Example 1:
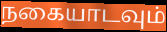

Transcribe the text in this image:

நகையாடவும்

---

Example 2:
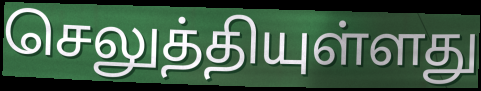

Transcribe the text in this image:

செலுத்தியுள்ளது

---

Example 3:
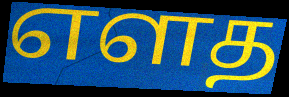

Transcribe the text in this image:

எளத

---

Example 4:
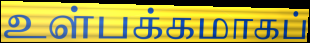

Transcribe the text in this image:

உள்பக்கமாகப்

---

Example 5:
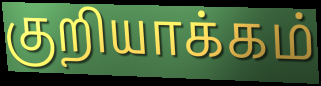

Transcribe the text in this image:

குறியாக்கம்